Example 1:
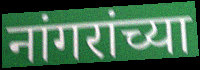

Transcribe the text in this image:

नांगरांच्या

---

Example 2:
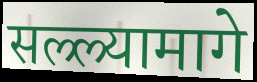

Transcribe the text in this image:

सल्ल्यामागे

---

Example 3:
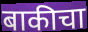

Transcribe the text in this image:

बाकीचा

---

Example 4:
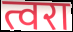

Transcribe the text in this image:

त्वरा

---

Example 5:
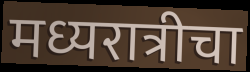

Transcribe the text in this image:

मध्यरात्रीचा